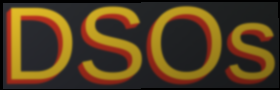
DSOs